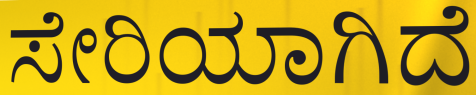
ಸೇರಿಯಾಗಿದೆ